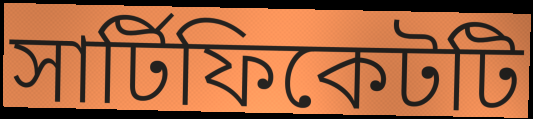
সার্টিফিকেটটি